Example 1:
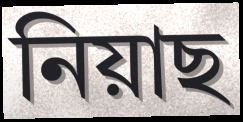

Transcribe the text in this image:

নিয়াছ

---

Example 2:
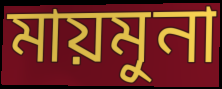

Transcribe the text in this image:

মায়মুনা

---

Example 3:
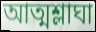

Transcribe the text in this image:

আত্মশ্লাঘা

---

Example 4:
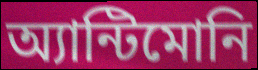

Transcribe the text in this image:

অ্যান্টিমোনি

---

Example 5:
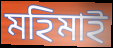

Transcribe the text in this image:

মহিমাই